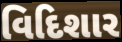
વિદિશાર